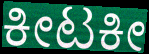
ಕೀಟಕೀ